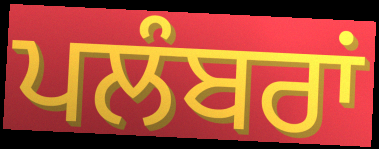
ਪਲੰਬਰਾਂ